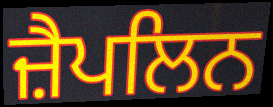
ਜ਼ੈਪਲਿਨ